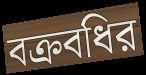
বক্রবধির